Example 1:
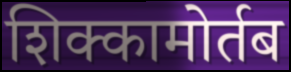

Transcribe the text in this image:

शिक्कामोर्तब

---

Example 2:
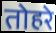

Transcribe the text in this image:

तोहरे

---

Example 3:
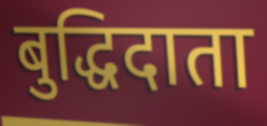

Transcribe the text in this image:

बुद्धिदाता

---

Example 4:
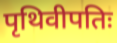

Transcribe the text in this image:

पृथिवीपतिः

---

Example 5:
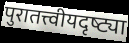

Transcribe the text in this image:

पुरातत्त्वीयदृष्ट्या